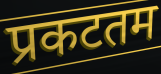
प्रकटतम